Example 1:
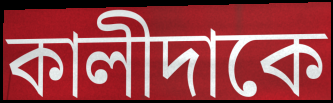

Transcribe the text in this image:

কালীদাকে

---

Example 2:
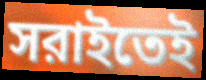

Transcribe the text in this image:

সরাইতেই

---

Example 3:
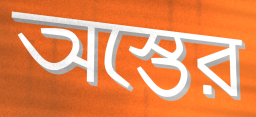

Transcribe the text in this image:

অস্তের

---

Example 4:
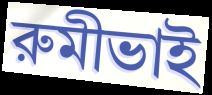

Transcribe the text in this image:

রুমীভাই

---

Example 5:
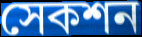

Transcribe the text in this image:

সেকশন